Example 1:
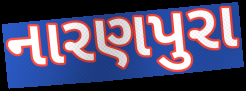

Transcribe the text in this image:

નારણપુરા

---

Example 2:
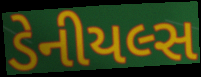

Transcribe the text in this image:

ડેનીયલ્સ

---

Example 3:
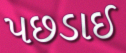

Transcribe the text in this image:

પછડાઈ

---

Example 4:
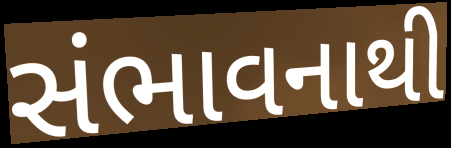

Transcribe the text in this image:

સંભાવનાથી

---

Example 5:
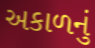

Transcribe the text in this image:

અકાળનું